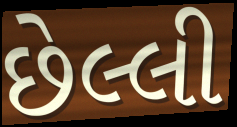
છેલ્લી